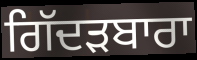
ਗਿੱਦੜਬਾਰਾ